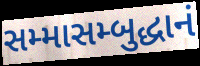
સમ્માસમ્બુદ્ધાનં